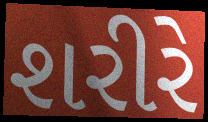
શરીરે